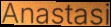
Anastasi